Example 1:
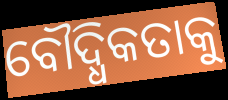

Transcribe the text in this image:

ବୌଦ୍ଧିକତାକୁ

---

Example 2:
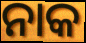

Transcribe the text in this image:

ନାକ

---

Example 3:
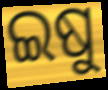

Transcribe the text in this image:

ଇଷୁ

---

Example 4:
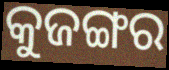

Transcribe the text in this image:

କୁଜଙ୍ଗର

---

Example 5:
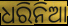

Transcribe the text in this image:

ଧରିନିଆ